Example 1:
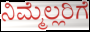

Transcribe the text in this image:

ನಿಮ್ಮೆಲ್ಲರಿಗೆ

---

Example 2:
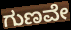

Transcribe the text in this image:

ಗುಣವೇ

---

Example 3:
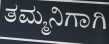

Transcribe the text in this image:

ತಮ್ಮನಿಗಾಗಿ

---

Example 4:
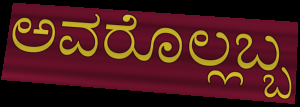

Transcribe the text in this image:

ಅವರೊಲ್ಲಬ್ಬ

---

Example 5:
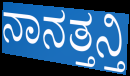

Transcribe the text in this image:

ನಾನತ್ತನ್ತಿ